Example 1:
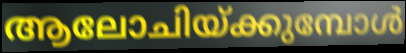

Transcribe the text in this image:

ആലോചിയ്ക്കുമ്പോൾ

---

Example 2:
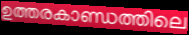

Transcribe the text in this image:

ഉത്തരകാണ്ഡത്തിലെ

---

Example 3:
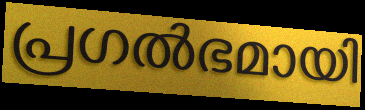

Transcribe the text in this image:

പ്രഗൽഭമായി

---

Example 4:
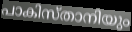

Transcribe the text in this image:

പാകിസ്താനിയും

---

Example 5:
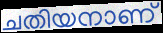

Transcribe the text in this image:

ചതിയനാണ്